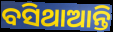
ବସିଥାଆନ୍ତି